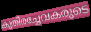
കുതിരച്ചേവകരുടെ